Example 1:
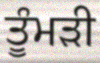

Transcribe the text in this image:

ਤੂੰਮੜੀ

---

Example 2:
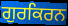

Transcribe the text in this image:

ਗੁਰਕਿਰਨ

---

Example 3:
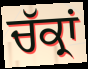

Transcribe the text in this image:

ਚੱਕ੍ਰਾਂ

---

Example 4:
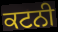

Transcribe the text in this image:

ਕਟਨੀ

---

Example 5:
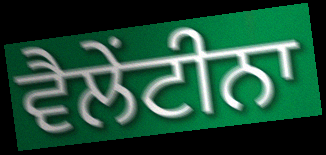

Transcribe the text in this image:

ਵੈਲੇਂਟੀਨਾ